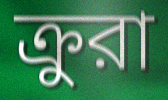
ক্রুরা